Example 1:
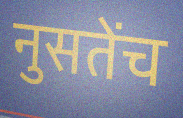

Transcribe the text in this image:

नुसतेंच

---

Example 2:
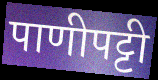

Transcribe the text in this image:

पाणीपट्टी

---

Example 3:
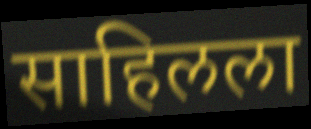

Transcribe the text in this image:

साहिलला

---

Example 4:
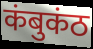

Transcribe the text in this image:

कंबुकंठ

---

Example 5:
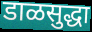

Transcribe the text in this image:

डाळसुद्धा